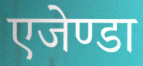
एजेण्डा